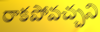
రాకపోవచ్చని